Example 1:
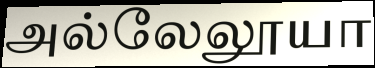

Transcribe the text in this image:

அல்லேலூயா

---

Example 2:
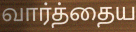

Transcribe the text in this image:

வார்த்தைய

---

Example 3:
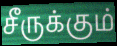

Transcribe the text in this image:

சீருக்கும்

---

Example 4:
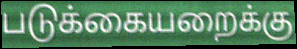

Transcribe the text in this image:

படுக்கையறைக்கு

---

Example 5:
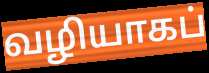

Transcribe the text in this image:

வழியாகப்